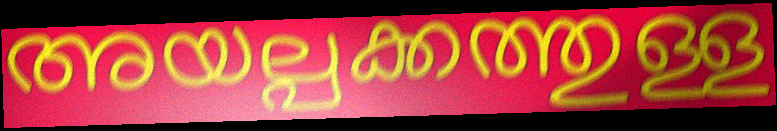
അയല്പക്കത്തുള്ള